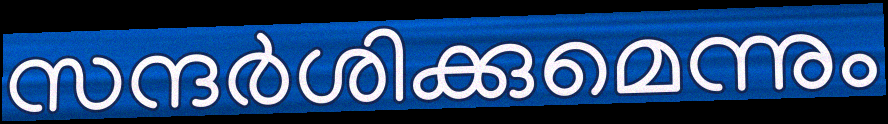
സന്ദർശിക്കുമെന്നും